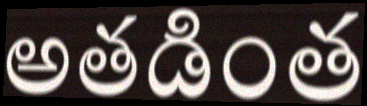
అతడింత